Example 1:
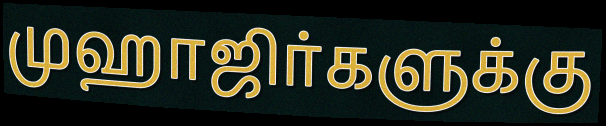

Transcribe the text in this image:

முஹாஜிர்களுக்கு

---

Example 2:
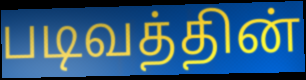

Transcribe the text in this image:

படிவத்தின்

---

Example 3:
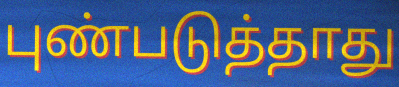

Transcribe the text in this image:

புண்படுத்தாது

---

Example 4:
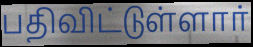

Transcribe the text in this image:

பதிவிட்டுள்ளார்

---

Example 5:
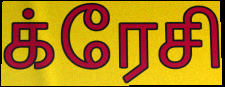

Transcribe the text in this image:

க்ரேசி